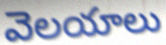
వెలయాలు